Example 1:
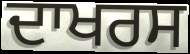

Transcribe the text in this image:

ਦਾਖਰਸ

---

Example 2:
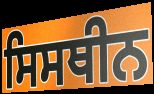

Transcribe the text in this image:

ਸਿਸਥੀਨ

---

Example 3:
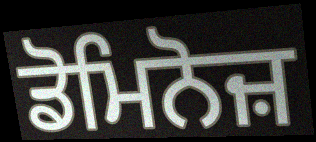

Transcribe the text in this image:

ਡੋਮਿਨੋਜ਼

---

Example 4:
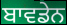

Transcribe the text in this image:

ਬਾਵਡੇਨ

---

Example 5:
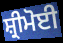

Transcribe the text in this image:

ਸ਼੍ਰੀਮੋਈ